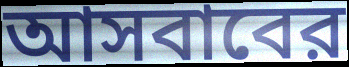
আসবাবের